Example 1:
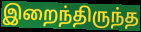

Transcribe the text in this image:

இறைந்திருந்த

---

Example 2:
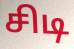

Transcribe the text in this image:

சிடி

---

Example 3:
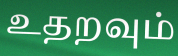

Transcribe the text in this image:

உதறவும்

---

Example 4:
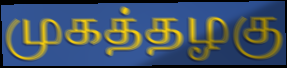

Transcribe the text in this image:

முகத்தழகு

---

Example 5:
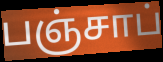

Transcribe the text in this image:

பஞ்சாப்